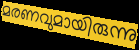
മരണവുമായിരുന്നു